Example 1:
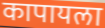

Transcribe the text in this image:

कापायला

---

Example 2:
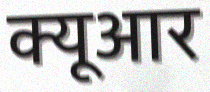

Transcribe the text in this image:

क्यूआर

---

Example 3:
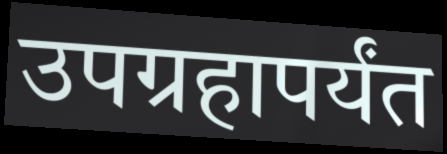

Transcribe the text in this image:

उपग्रहापर्यंत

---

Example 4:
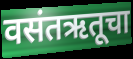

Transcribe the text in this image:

वसंतऋतूचा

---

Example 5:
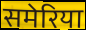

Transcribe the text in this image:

समेरिया